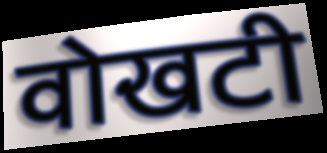
वोखटी